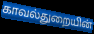
காவல்துறையின்